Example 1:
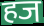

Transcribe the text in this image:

हज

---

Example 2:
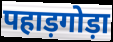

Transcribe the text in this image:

पहाड़गोड़ा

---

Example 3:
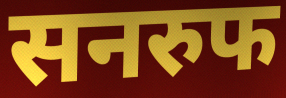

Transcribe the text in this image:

सनरुफ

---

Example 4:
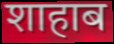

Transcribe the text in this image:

शाहाब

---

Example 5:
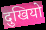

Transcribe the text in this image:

दुखियो